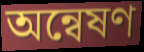
অন্বেষণ